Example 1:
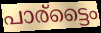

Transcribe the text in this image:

പാര്ട്ടൈം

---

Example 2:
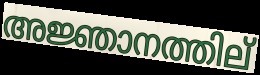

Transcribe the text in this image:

അജ്ഞാനത്തില്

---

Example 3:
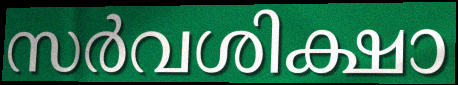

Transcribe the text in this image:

സർവശിക്ഷാ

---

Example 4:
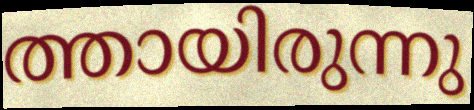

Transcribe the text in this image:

ത്തായിരുന്നു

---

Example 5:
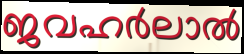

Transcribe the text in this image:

ജവഹർലാൽ